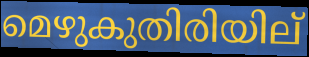
മെഴുകുതിരിയില്